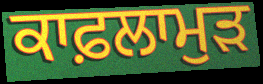
ਕਾਫ਼ਲਾਮੁੜ